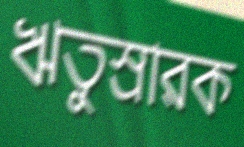
ঋতুস্ৰাৱক